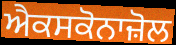
ਐਕਸਕੋਨਾਜ਼ੋਲ